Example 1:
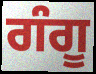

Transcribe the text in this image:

ਗੰਗੂ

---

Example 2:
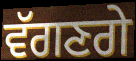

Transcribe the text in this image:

ਵੱਗਣਗੇ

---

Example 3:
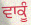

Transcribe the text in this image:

ਵਾਕੂੰ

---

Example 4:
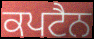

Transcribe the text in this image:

ਕਪਟੈਨ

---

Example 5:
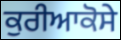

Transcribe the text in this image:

ਕੁਰੀਆਕੋਸੇ